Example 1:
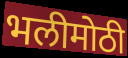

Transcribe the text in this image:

भलीमोठी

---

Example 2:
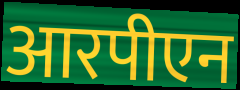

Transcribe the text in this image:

आरपीएन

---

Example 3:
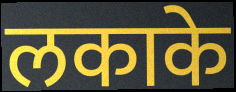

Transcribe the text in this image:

लकाके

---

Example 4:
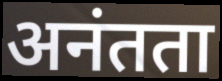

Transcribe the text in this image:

अनंतता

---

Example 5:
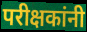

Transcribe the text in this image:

परीक्षकांनी